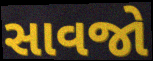
સાવજો